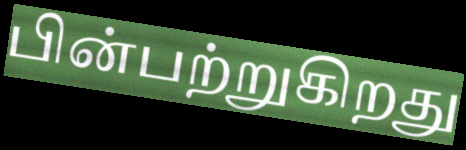
பின்பற்றுகிறது